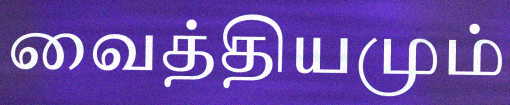
வைத்தியமும்